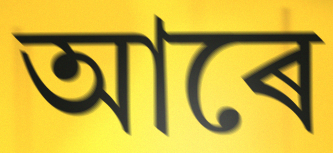
আৰে